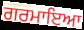
ਗਰਮਾਇਆ